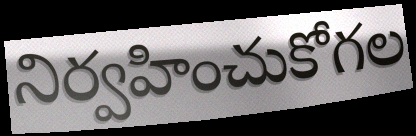
నిర్వహించుకోగల